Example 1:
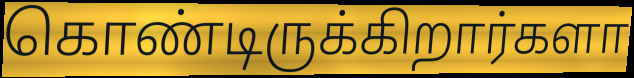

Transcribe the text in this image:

கொண்டிருக்கிறார்களா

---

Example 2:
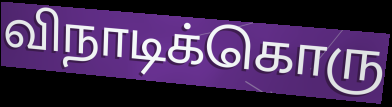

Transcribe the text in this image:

விநாடிக்கொரு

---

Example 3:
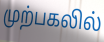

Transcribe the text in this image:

முற்பகலில்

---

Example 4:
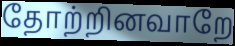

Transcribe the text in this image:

தோற்றினவாறே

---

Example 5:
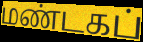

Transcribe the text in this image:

மண்டகப்